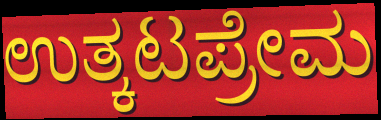
ಉತ್ಕಟಪ್ರೇಮ